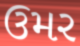
ઉમર